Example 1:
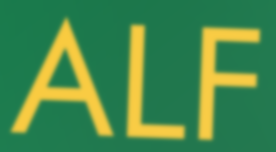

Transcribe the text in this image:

ALF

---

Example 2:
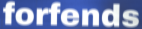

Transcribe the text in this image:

forfends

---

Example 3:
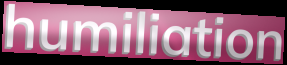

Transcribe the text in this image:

humiliation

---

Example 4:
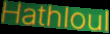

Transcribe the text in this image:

Hathloul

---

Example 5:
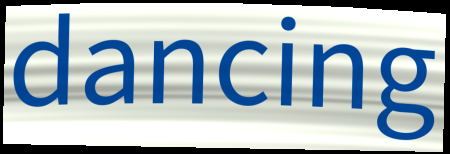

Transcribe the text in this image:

dancing